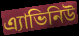
এ্যাভিনিউ